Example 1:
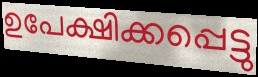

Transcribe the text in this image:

ഉപേക്ഷിക്കപ്പെട്ടു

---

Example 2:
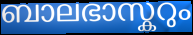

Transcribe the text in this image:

ബാലഭാസ്കറും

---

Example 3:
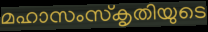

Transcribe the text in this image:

മഹാസംസ്കൃതിയുടെ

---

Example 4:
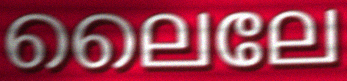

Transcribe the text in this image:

ലൈലേ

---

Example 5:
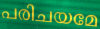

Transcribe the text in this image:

പരിചയമേ